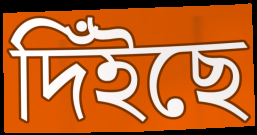
দিঁইছে